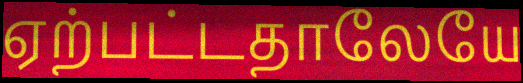
ஏற்பட்டதாலேயே